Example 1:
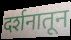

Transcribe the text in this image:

दर्शनातून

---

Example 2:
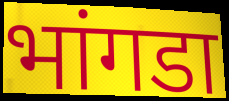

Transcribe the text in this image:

भांगडा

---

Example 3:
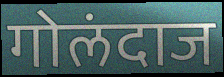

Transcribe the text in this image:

गोलंदाज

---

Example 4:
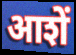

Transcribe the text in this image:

आशें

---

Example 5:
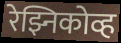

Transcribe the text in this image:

रेझ्निकोव्ह